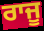
ਰਾਜੂ